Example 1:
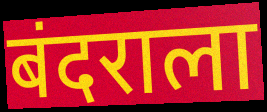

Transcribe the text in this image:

बंदराला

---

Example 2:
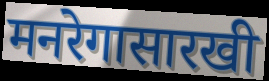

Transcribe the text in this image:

मनरेगासारखी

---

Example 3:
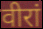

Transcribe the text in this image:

वीरां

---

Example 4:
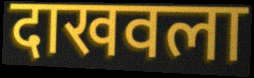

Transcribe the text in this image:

दाखवला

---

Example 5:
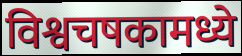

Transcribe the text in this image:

विश्वचषकामध्ये